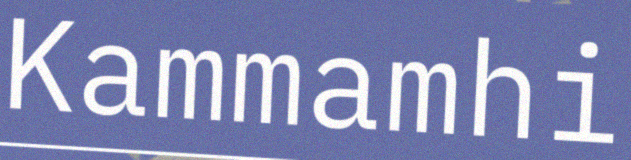
Kammamhi